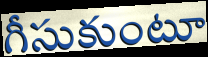
గీసుకుంటూ